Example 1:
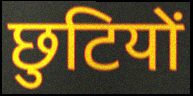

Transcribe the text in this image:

छुटियों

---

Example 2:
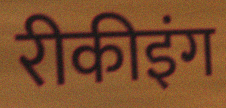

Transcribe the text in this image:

रीकीइंग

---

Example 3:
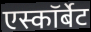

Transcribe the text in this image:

एस्कॉर्बेट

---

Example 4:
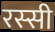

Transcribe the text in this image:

रस्‍सी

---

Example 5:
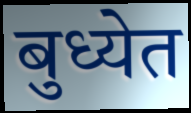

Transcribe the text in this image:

बुध्येत